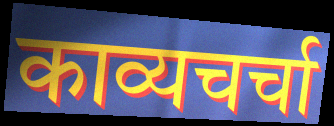
काव्यचर्चा